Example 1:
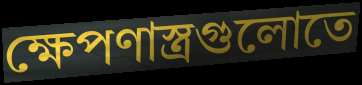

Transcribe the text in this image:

ক্ষেপণাস্ত্রগুলোতে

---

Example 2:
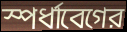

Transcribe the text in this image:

স্পর্ধাবেগের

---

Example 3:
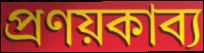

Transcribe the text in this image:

প্রণয়কাব্য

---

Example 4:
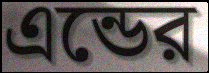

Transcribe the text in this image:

এন্ডের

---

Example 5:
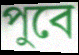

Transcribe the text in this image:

পুবে